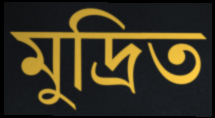
মুদ্রিত